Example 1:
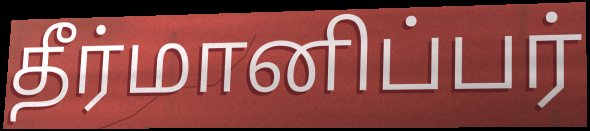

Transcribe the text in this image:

தீர்மானிப்பர்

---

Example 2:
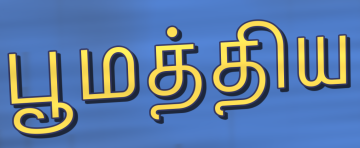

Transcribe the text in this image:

பூமத்திய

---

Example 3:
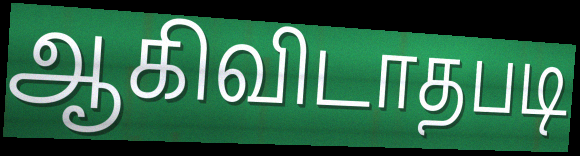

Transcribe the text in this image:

ஆகிவிடாதபடி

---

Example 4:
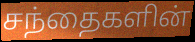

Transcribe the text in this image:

சந்தைகளின்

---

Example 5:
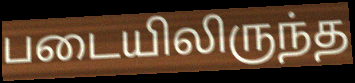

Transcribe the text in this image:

படையிலிருந்த